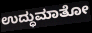
ಉದ್ಧುಮಾತೋ